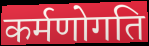
कर्मणोगति